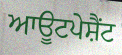
ਆਊਟਪੇਸ਼ੈਂਟ